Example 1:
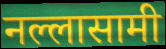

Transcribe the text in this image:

नल्लासामी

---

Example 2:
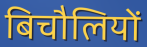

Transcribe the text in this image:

बिचौलियों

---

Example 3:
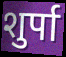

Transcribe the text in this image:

शुर्पा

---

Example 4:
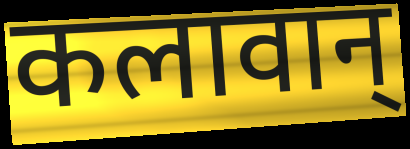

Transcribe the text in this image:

कलावान्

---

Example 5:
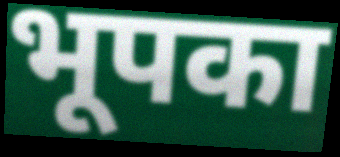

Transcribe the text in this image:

भूपका